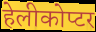
हेलीकोप्टर